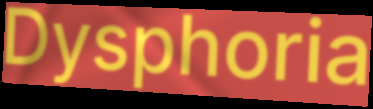
Dysphoria